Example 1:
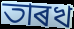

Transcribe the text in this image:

তাৰখ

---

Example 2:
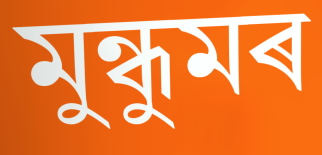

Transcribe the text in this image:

মুন্ধুমৰ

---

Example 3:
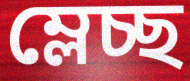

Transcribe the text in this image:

ম্লেচ্ছ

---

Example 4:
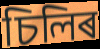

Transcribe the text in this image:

চিলিৰ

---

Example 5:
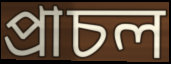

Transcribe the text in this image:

প্ৰাচল